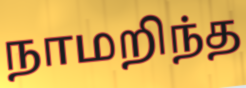
நாமறிந்த